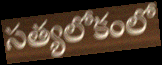
సత్యలోకంలో